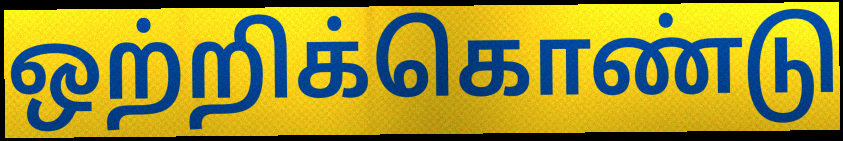
ஒற்றிக்கொண்டு